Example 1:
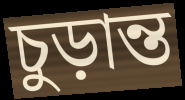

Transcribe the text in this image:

চুড়ান্ত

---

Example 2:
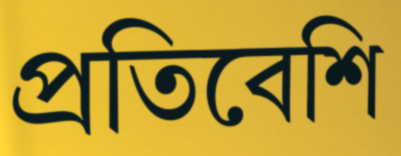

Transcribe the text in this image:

প্রতিবেশি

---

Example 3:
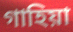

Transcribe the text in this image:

গাহিয়া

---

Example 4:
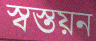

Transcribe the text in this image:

স্বস্তয়ন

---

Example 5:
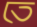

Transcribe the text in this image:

তে